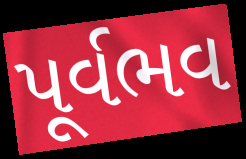
પૂર્વભવ